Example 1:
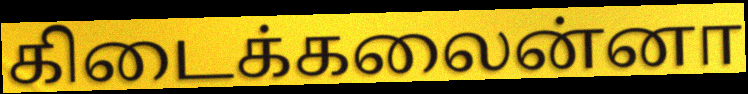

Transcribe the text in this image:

கிடைக்கலைன்னா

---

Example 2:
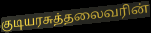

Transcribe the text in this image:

குடியரசுத்தலைவரின்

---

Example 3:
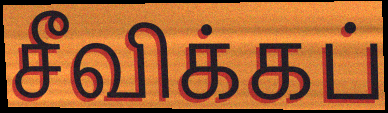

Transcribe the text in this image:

சீவிக்கப்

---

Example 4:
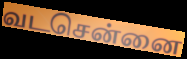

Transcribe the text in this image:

வடசென்னை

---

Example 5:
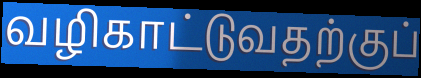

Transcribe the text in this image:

வழிகாட்டுவதற்குப்